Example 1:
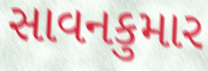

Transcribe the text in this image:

સાવનકુમાર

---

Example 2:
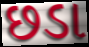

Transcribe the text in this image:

છડા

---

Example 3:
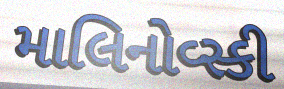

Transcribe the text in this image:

માલિનોવ્સ્કી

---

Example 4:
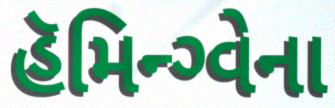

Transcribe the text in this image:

હૅમિન્ગ્વેના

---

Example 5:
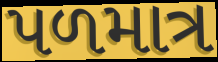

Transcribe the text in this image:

પળમાત્ર